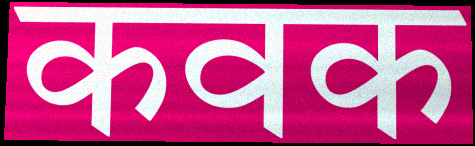
कवक